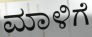
ಮಾಳಿಗೆ